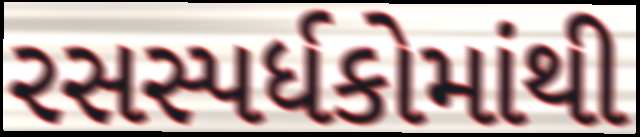
રસસ્પર્ધકોમાંથી